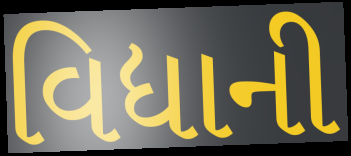
વિદ્યાની